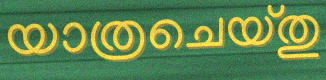
യാത്രചെയ്തു